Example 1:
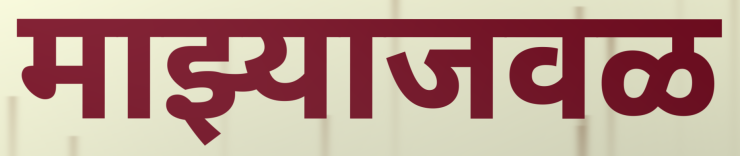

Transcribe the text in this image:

माझ्याजवळ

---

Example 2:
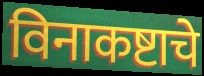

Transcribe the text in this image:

विनाकष्टाचे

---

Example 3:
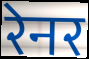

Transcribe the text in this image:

रेनर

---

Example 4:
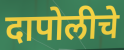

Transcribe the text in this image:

दापोलीचे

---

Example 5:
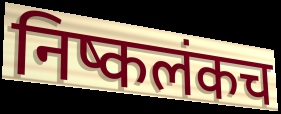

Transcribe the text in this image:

निष्कलंकच